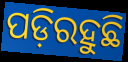
ପଡ଼ିରହୁଛି